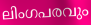
ലിംഗപരവും